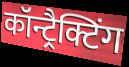
कॉन्ट्रैक्टिंग